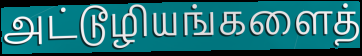
அட்டூழியங்களைத்